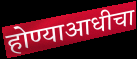
होण्याआधीचा